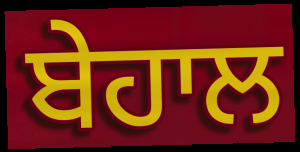
ਬੇਹਾਲ